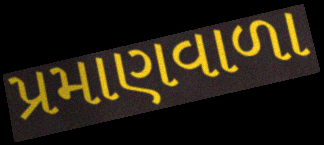
પ્રમાણવાળા